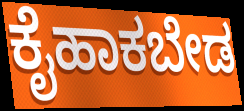
ಕೈಹಾಕಬೇಡ